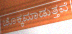
ಚೊಕ್ಕಮಾಡುತ್ತವೆ